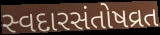
સ્વદારસંતોષવ્રત